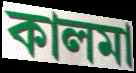
কালমা